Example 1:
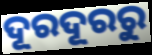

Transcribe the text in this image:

ଦୂରଦୂରରୁ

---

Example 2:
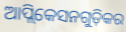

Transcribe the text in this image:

ଆପ୍ଲିକେସନଗୁଡ଼ିକର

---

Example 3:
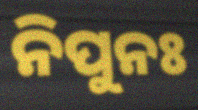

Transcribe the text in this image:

ନିପୁନଃ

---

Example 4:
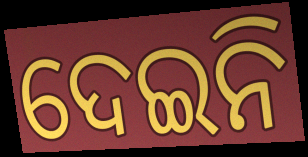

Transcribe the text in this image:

ଦେଇନି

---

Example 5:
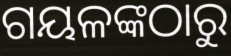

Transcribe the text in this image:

ଗୟଳଙ୍କଠାରୁ